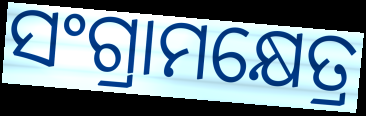
ସଂଗ୍ରାମକ୍ଷେତ୍ର